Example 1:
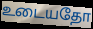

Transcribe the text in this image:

உடையதோ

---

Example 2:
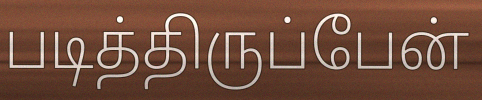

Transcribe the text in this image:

படித்திருப்பேன்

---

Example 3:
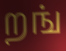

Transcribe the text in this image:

றங்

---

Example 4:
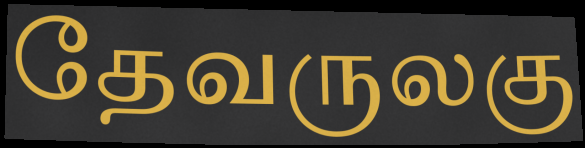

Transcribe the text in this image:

தேவருலகு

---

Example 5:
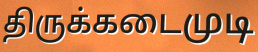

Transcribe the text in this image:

திருக்கடைமுடி